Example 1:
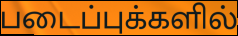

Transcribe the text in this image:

படைப்புக்களில்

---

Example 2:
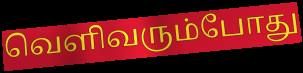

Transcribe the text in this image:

வெளிவரும்போது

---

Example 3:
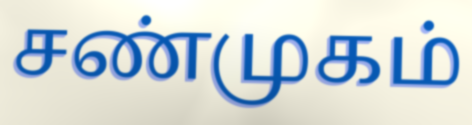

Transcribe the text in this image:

சண்முகம்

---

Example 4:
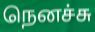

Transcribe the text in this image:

நெனச்சு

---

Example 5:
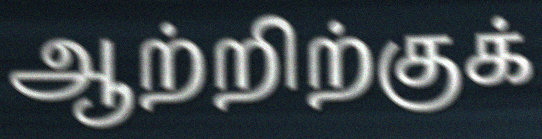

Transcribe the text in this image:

ஆற்றிற்குக்